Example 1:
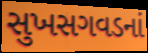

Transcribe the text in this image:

સુખસગવડનાં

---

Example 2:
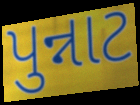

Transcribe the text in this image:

પુન્નાટ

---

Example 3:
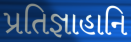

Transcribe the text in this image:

પ્રતિજ્ઞાહાનિ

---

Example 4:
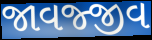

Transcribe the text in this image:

જાવજ્જીવ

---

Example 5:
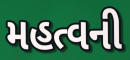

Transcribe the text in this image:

મહત્વની